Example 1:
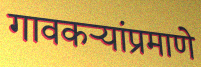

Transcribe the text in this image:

गावकऱ्यांप्रमाणे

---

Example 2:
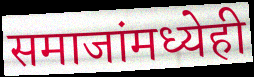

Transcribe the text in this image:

समाजांमध्येही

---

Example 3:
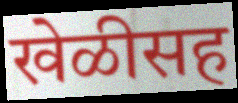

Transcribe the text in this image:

खेळीसह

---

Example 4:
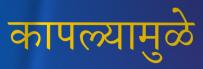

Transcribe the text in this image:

कापल्यामुळे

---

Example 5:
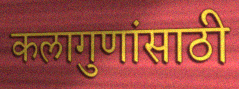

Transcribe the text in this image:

कलागुणांसाठी